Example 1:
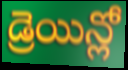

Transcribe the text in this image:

డ్రెయిన్లో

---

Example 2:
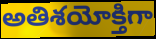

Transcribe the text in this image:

అతిశయోక్తిగా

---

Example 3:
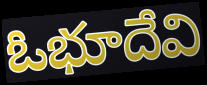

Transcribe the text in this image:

ఓభూదేవి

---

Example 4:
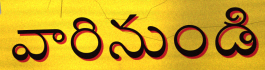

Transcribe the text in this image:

వారినుండి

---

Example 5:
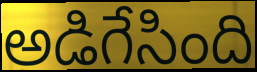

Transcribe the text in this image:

అడిగేసింది